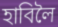
হাবিলৈ